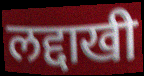
लद्दाखी